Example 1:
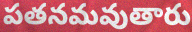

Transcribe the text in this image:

పతనమవుతారు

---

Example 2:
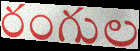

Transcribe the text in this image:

రంగుల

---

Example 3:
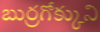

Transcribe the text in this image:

బుర్రగోక్కుని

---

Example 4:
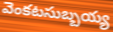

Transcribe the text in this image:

వెంకటసుబ్బయ్య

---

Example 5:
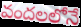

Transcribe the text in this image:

వందలలోనే